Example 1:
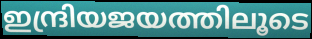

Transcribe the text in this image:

ഇന്ദ്രിയജയത്തിലൂടെ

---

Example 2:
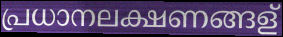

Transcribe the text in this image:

പ്രധാനലക്ഷണങ്ങള്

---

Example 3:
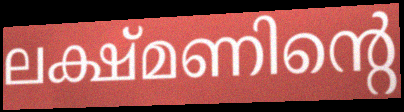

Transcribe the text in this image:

ലക്ഷ്മണിന്റെ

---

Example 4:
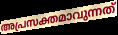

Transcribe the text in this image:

അപ്രസക്തമാവുന്നത്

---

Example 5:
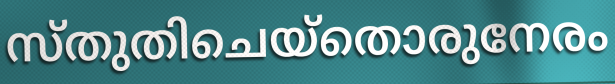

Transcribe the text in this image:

സ്തുതിചെയ്തൊരുനേരം